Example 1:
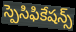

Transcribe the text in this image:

స్పెసిఫికేషన్స్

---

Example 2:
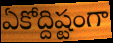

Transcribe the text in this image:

ఏకోద్దిష్టంగా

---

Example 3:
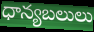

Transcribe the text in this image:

ధాన్యబలులు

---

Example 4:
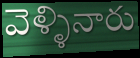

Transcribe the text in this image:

వెళ్ళినారు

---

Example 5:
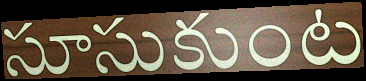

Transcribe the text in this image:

సూసుకుంట